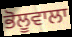
ਭੋਲੂਵਾਲਾ